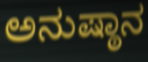
ಅನುಷ್ಠಾನ